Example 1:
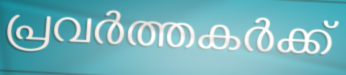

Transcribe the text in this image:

പ്രവർത്തകർക്ക്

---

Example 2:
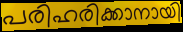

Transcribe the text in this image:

പരിഹരിക്കാനായി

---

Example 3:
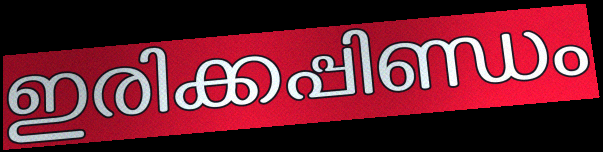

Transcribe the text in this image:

ഇരിക്കപ്പിണ്ഡം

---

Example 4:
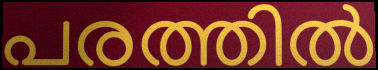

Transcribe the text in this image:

പരത്തിൽ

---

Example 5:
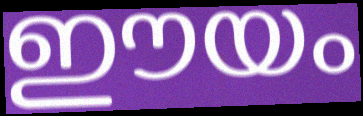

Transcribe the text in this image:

ഈയം